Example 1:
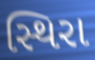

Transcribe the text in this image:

સ્થિરા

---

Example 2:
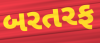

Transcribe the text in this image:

બરતરફ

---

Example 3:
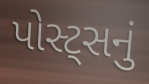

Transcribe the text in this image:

પોસ્ટ્સનું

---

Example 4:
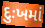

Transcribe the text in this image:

દુઃખમાં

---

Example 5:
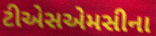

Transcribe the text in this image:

ટીએસએમસીના